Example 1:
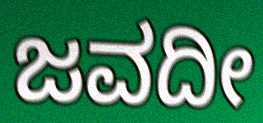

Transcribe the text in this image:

ಜವದೀ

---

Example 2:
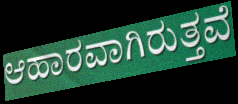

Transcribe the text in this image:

ಆಹಾರವಾಗಿರುತ್ತವೆ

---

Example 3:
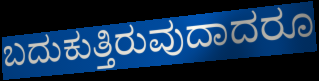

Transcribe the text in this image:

ಬದುಕುತ್ತಿರುವುದಾದರೂ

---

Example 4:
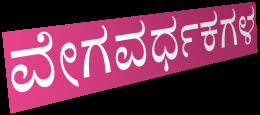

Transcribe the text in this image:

ವೇಗವರ್ಧಕಗಳ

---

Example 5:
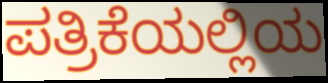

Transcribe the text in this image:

ಪತ್ರಿಕೆಯಲ್ಲಿಯ